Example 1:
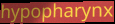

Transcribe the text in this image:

hypopharynx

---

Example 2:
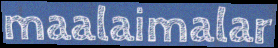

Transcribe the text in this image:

maalaimalar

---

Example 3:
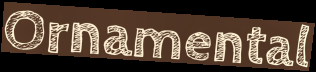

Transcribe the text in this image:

Ornamental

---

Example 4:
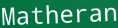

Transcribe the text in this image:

Matheran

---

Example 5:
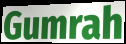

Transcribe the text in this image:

Gumrah